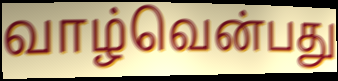
வாழ்வென்பது